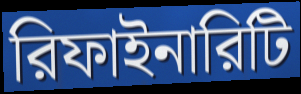
রিফাইনারিটি